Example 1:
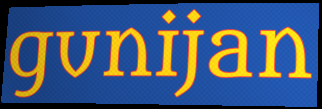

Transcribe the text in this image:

gunijan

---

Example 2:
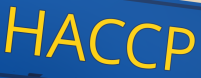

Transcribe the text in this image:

HACCP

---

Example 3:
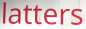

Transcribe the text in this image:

latters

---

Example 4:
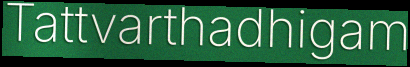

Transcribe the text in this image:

Tattvarthadhigam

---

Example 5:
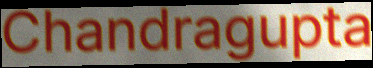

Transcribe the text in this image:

Chandragupta